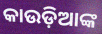
କାଉଡ଼ିଆଙ୍କ